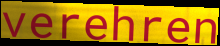
verehren